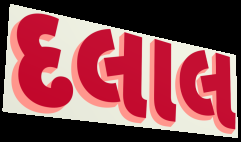
દલાલ